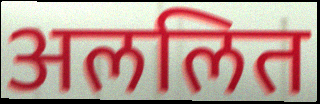
अललित